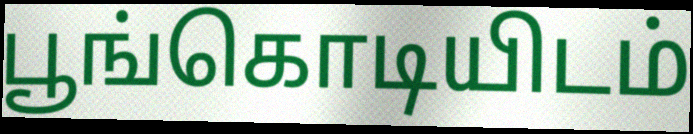
பூங்கொடியிடம்